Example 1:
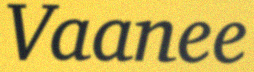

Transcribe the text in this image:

Vaanee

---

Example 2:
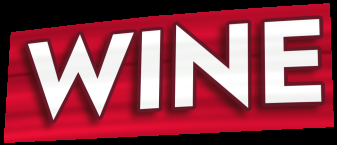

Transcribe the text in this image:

WINE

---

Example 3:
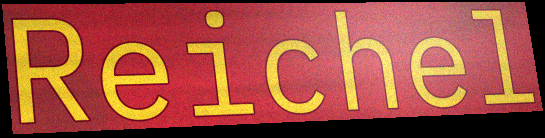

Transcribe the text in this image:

Reichel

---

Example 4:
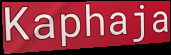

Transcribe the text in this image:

Kaphaja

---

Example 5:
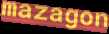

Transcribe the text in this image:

mazagon